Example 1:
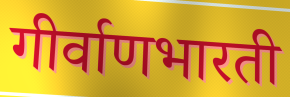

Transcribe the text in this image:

गीर्वाणभारती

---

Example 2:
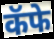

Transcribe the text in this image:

कॅफे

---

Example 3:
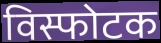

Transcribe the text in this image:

विस्फोटक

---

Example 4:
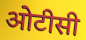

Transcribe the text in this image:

ओटीसी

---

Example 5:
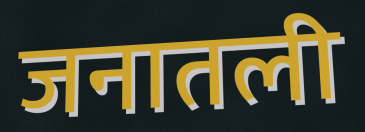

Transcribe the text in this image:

जनातली